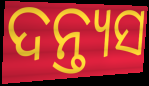
ଦନ୍ତ୍ୟସ